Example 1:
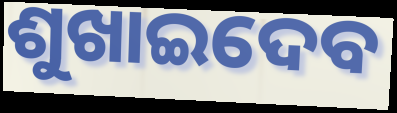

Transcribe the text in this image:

ଶୁଖାଇଦେବ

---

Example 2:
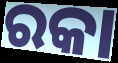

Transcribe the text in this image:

ରକା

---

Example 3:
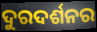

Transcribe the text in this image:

ଦୁରଦର୍ଶନର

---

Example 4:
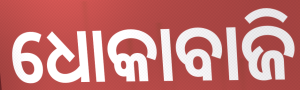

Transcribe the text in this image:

ଧୋକାବାଜି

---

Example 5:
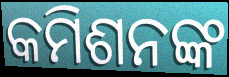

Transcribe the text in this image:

କମିଶନଙ୍କ